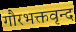
गौरभक्तवृन्द